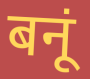
बनूं